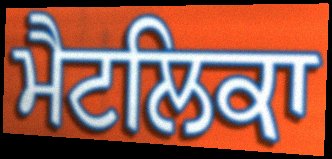
ਮੈਟਲਿਕਾ